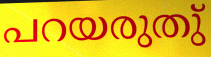
പറയരുതു്